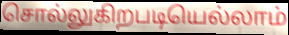
சொல்லுகிறபடியெல்லாம்